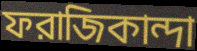
ফরাজিকান্দা